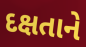
દક્ષતાને